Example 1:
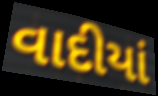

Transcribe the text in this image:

વાદીયાં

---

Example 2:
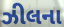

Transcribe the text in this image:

ઝીલના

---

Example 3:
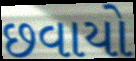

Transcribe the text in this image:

છવાયો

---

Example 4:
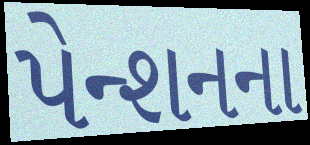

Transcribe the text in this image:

પેન્શનના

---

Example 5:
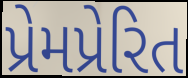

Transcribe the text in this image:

પ્રેમપ્રેરિત